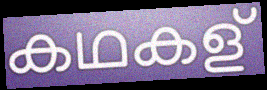
കഥകള്